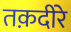
तक़दीरे